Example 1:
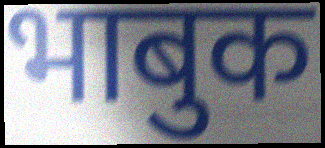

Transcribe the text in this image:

भाबुक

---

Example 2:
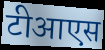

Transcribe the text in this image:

टीआएस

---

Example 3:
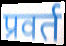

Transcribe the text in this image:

प्रवर्त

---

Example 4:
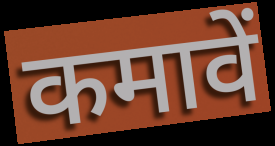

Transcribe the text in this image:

कमावें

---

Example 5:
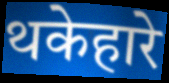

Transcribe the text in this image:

थकेहारे